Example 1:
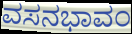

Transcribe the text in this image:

ವಸನಭಾವಂ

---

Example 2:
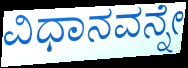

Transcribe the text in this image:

ವಿಧಾನವನ್ನೇ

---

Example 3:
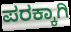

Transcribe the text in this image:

ಪರಕ್ಕಾಗಿ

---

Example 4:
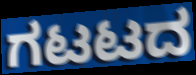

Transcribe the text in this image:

ಗಟಟದ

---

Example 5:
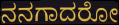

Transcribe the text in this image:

ನನಗಾದರೋ